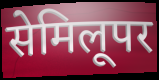
सेमिलूपर